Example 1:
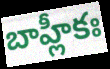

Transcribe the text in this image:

బాహ్లీకః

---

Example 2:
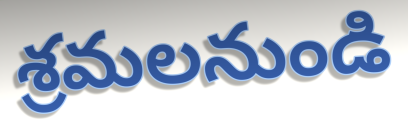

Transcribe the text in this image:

శ్రమలనుండి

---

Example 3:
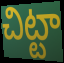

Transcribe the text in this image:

చిట్టా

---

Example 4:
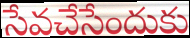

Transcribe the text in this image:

సేవచేసేందుకు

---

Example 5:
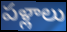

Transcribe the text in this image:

పళ్లాలు